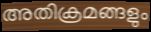
അതിക്രമങ്ങളും